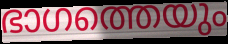
ഭാഗത്തെയും